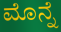
ಮೊನ್ನೆ